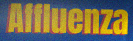
Affluenza